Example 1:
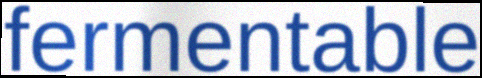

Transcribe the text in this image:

fermentable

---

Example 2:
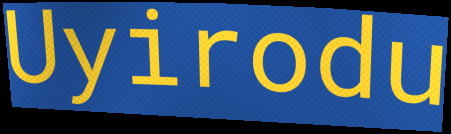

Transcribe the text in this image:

Uyirodu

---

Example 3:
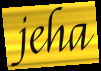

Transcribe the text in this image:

jeha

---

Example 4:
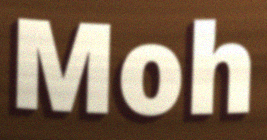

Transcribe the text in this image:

Moh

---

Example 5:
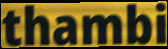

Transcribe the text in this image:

thambi